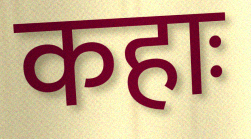
कहाः